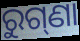
ରୁଗ୍‌ଣା